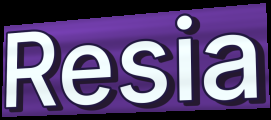
Resia